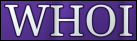
WHOI